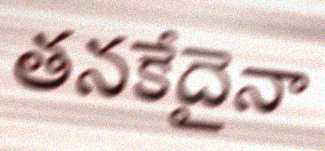
తనకేదైనా